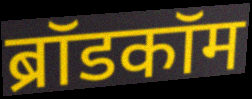
ब्रॉडकॉम